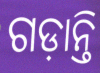
ଗଡ଼ାନ୍ତି